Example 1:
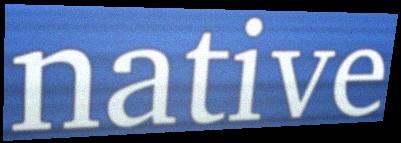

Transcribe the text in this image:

native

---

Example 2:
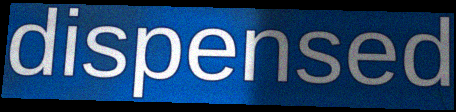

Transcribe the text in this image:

dispensed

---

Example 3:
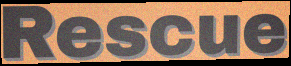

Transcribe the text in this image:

Rescue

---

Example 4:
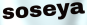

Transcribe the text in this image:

soseya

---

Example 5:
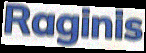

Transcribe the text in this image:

Raginis